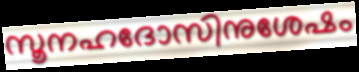
സൂനഹദോസിനുശേഷം